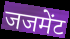
जजमेंट